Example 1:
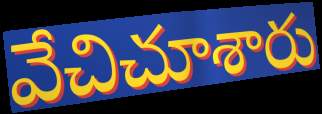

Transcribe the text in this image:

వేచిచూశారు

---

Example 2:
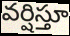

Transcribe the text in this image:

వర్షిస్తూ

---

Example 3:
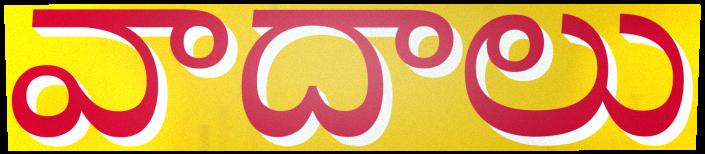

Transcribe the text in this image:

వాదాలు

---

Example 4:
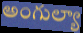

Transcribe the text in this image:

అంగుల్యా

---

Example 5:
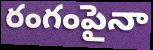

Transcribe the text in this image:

రంగంపైనా